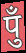
पुँ